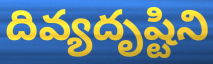
దివ్యదృష్టిని